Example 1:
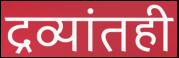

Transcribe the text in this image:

द्रव्यांतही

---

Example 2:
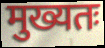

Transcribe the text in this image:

मुख्यतः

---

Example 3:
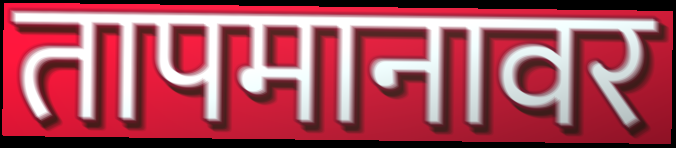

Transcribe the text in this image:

तापमानावर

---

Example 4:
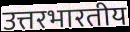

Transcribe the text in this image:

उत्तरभारतीय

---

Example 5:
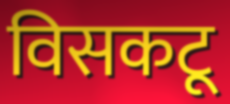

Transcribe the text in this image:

विसकटू